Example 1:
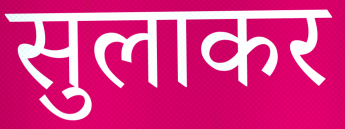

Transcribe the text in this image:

सुलाकर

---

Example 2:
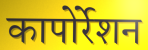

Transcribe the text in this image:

कापोर्रेशन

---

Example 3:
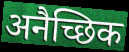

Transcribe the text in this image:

अनैच्छिक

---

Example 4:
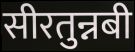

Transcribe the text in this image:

सीरतुन्नबी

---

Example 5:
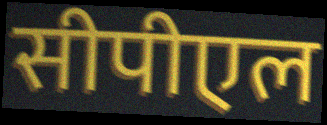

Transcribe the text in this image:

सीपीएल